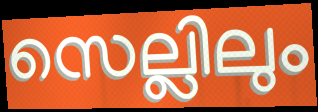
സെല്ലിലും